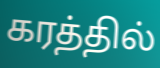
கரத்தில்